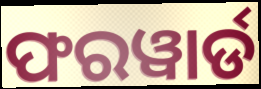
ଫରୱାର୍ଡ